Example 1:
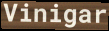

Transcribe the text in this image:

Vinigar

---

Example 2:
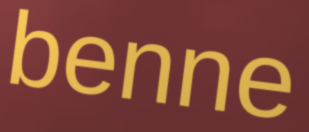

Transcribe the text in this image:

benne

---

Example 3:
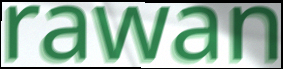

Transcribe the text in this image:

rawan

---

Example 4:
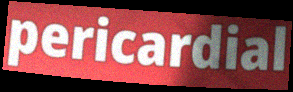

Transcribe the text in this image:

pericardial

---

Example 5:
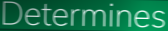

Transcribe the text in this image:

Determines